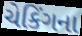
ચેકિંગના